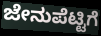
ಜೇನುಪೆಟ್ಟಿಗೆ